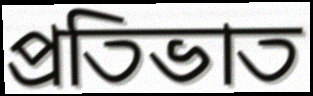
প্ৰতিভাত